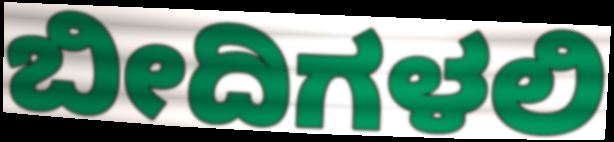
ಬೀದಿಗಳಲಿ